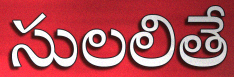
సులలితే